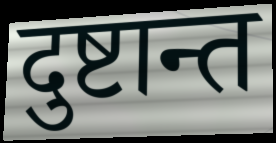
दुष्टान्त